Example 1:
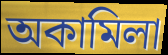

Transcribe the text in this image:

অকামিলা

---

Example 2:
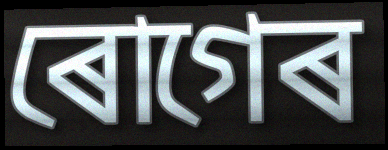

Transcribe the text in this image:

ৰোগেৰ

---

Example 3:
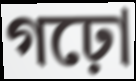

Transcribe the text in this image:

গঢ়ো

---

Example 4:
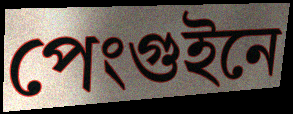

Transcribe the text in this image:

পেংগুইনে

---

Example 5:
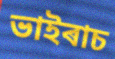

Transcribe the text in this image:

ভাইৰাচ